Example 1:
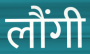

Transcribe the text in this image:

लौंगी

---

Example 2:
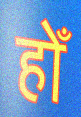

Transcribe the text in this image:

होँ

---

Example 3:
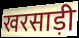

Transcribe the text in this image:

खरसाड़ी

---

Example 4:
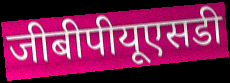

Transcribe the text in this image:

जीबीपीयूएसडी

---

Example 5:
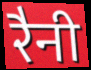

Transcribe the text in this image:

रैनी